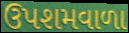
ઉપશમવાળા